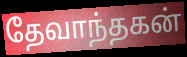
தேவாந்தகன்